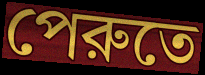
পেরুতে